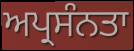
ਅਪ੍ਰਸੰਨਤਾ